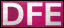
DFE